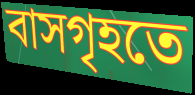
বাসগৃহতে